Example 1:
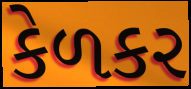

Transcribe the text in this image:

કેળકર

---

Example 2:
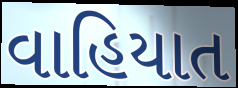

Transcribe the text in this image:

વાહિયાત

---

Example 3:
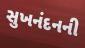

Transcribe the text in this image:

સુખનંદનની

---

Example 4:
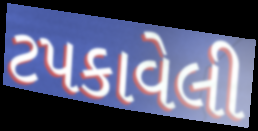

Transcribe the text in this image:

ટપકાવેલી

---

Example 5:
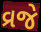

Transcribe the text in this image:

વ્રજે